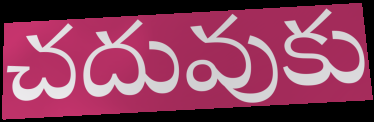
చదువుకు